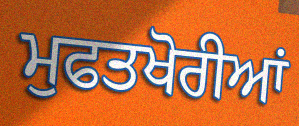
ਮੁਫਤਖੋਰੀਆਂ